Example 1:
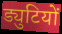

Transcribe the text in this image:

ड्युटियों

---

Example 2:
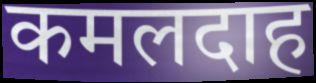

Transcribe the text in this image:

कमलदाह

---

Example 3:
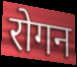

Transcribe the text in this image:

रोगन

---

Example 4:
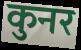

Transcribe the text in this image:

कुनर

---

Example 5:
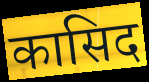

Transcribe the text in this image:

कासिद